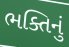
ભક્તિનું